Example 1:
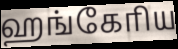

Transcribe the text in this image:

ஹங்கேரிய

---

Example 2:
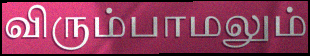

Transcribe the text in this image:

விரும்பாமலும்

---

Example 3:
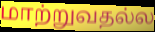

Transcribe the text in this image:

மாற்றுவதல்ல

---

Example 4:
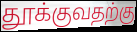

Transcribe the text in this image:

தூக்குவதற்கு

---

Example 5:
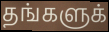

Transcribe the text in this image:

தங்களுக்